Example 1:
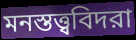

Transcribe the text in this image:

মনস্তত্ত্ববিদরা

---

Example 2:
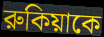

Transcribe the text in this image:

রুকিয়াকে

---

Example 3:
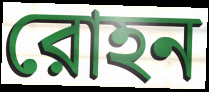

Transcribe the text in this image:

রোহন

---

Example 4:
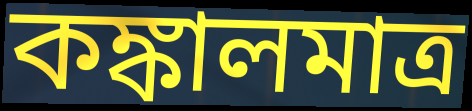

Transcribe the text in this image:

কঙ্কালমাত্র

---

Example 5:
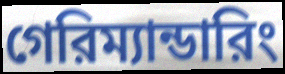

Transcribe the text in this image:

গেরিম্যান্ডারিং